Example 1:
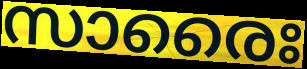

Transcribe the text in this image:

സാരൈഃ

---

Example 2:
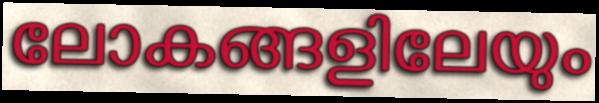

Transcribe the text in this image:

ലോകങ്ങളിലേയും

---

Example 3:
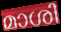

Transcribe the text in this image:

മാശി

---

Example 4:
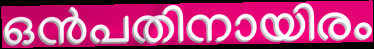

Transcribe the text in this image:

ഒൻപതിനായിരം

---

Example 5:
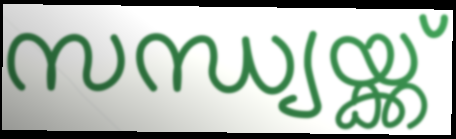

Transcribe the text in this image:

സന്ധ്യയ്ക്ക്